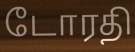
டோரதி